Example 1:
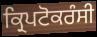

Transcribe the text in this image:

ਕ੍ਰਿਪਟੋਕਰੰਸੀ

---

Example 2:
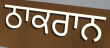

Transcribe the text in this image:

ਠਾਕਰਾਨ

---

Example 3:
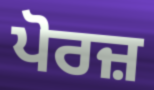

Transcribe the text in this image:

ਪੋਰਜ਼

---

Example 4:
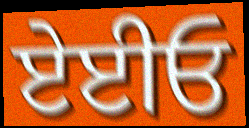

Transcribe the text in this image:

ਏਈਓ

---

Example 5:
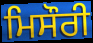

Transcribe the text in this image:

ਮਿਸੌਰੀ